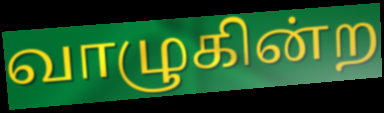
வாழுகின்ற